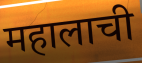
महालाची